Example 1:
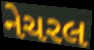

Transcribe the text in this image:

નેચરલ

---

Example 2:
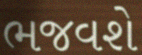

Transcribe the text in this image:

ભજવશે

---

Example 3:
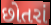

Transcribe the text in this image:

છોતરાં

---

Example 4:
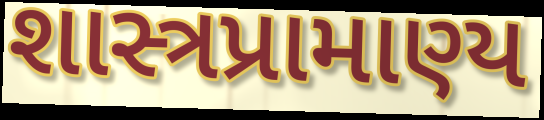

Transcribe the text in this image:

શાસ્ત્રપ્રામાણ્ય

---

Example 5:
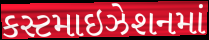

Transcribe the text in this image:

કસ્ટમાઇઝેશનમાં